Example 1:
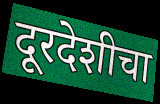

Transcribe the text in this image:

दूरदेशीचा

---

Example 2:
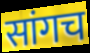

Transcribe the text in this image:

सांगच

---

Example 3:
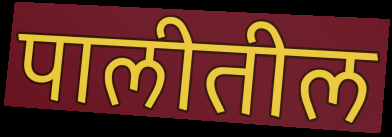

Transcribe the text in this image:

पालीतील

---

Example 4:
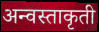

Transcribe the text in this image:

अन्वस्ताकृती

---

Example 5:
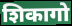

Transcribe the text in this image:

शिकागो